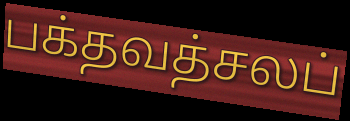
பக்தவத்சலப்